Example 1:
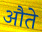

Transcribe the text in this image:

औते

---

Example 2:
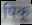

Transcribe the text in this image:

पिकू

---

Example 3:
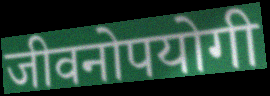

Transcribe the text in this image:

जीवनोपयोगी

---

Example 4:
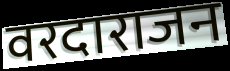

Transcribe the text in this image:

वरदाराजन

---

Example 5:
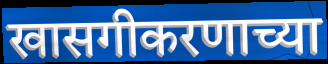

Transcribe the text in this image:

खासगीकरणाच्या